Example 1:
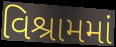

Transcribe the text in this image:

વિશ્રામમાં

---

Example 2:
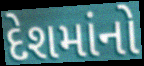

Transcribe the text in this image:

દેશમાંનો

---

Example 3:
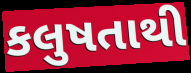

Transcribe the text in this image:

કલુષતાથી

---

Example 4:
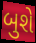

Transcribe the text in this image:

બુશે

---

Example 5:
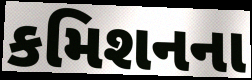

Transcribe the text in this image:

કમિશનના